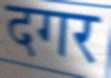
दगर